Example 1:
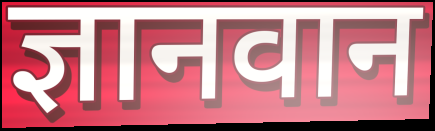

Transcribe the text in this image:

ज्ञानवान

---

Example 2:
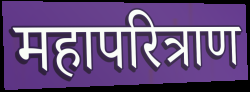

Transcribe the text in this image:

महापरित्राण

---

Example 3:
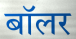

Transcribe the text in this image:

बॉलर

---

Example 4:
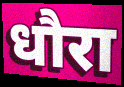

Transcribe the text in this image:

धौरा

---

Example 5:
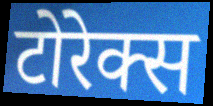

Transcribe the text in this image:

टोरेक्स